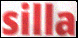
silla